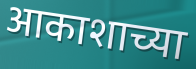
आकाशाच्या